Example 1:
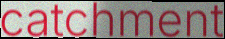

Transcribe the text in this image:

catchment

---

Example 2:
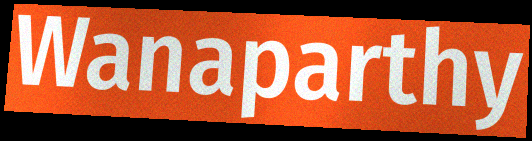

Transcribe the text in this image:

Wanaparthy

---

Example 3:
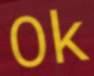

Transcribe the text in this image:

Ok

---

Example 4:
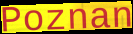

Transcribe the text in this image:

Poznan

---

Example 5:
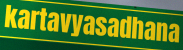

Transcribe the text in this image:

kartavyasadhana